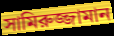
সামিরুজ্জামান